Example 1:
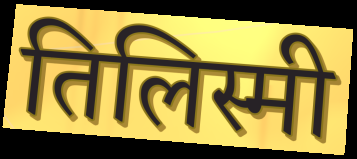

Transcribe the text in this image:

तिलिस्मी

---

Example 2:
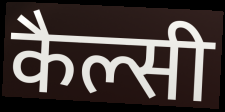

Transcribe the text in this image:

कैल्सी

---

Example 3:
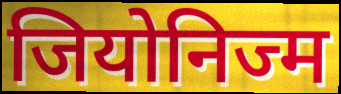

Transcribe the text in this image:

जियोनिज्म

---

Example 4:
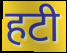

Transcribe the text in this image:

हटी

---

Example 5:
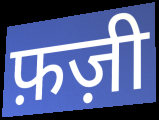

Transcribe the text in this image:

फ़ज़ी